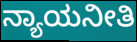
ನ್ಯಾಯನೀತಿ